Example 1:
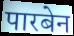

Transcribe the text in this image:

पारबेन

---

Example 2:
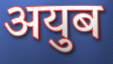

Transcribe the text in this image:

अयुब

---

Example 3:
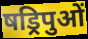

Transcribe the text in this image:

षड्रिपुओं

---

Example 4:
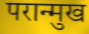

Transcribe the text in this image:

परान्मुख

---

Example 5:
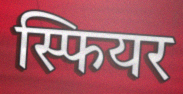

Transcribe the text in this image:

स्फियर